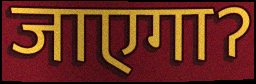
जाएगाॽ